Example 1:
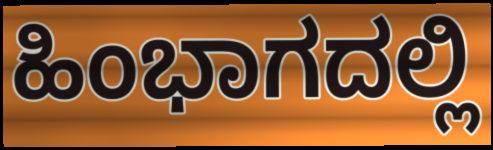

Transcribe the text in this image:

ಹಿಂಭಾಗದಲ್ಲಿ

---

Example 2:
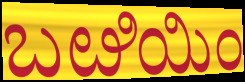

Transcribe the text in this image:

ಬೞಿಯಿಂ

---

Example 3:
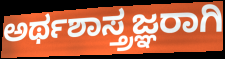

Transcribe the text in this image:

ಅರ್ಥಶಾಸ್ತ್ರಜ್ಞರಾಗಿ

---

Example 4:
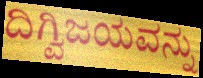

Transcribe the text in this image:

ದಿಗ್ವಿಜಯವನ್ನು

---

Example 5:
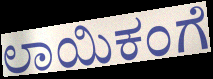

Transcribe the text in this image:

ಲಾಯಿಕಂಗೆ